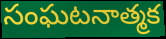
సంఘటనాత్మక